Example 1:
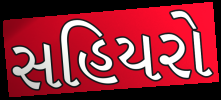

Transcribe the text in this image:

સહિયરો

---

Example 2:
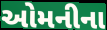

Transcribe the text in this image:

ઓમનીના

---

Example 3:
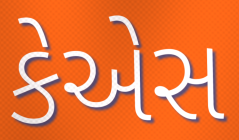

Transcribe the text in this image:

કેએસ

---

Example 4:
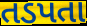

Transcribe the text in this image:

તડપતા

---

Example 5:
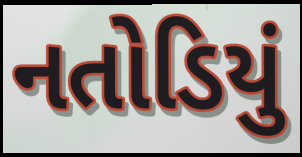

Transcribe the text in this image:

નતોડિયું